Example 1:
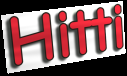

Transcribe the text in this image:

Hitti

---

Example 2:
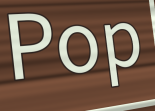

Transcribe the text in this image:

Pop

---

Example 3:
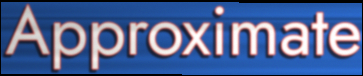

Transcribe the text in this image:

Approximate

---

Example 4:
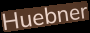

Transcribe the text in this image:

Huebner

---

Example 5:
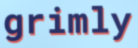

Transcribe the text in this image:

grimly